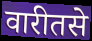
वारीतसे